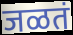
जळतं